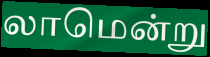
லாமென்று